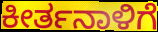
ಕೀರ್ತನಾಳಿಗೆ